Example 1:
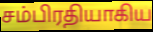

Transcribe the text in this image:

சம்பிரதியாகிய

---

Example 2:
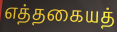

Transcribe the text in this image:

எத்தகையத்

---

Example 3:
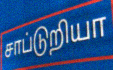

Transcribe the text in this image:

சாப்டுறியா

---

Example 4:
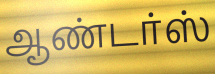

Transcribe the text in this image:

ஆண்டர்ஸ்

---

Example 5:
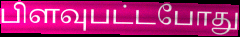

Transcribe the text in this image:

பிளவுபட்டபோது